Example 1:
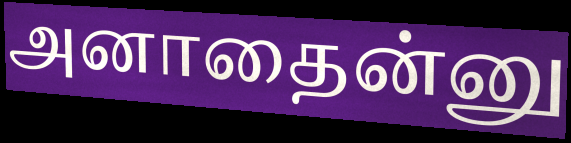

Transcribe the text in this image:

அனாதைன்னு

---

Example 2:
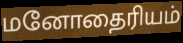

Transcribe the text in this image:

மனோதைரியம்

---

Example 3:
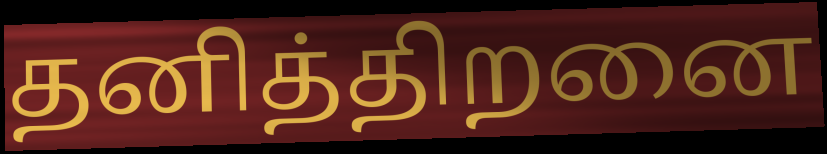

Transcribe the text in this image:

தனித்திறனை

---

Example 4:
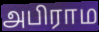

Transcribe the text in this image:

அபிராம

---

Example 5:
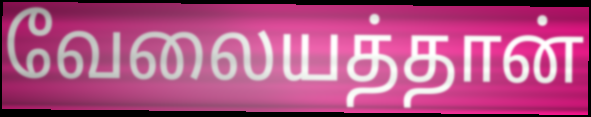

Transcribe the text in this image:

வேலையத்தான்